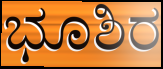
ಭೂಶಿರ